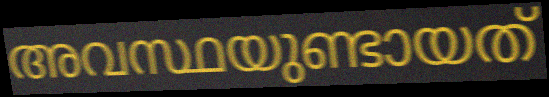
അവസ്ഥയുണ്ടായത്